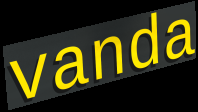
vanda